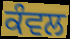
ਕੰਵਲ